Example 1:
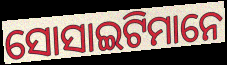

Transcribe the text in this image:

ସୋସାଇଟିମାନେ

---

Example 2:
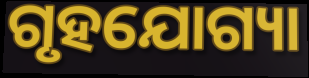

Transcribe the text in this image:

ଗୃହଯୋଗ୍ୟା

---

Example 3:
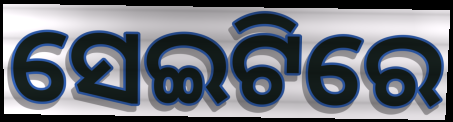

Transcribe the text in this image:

ସେଇଟିରେ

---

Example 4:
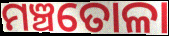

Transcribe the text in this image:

ମଞ୍ଚତୋଳା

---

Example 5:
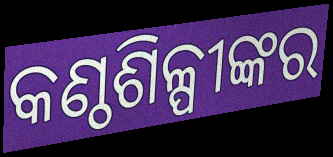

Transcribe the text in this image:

କଣ୍ଠଶିଳ୍ପୀଙ୍କର